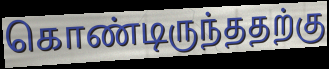
கொண்டிருந்ததற்கு